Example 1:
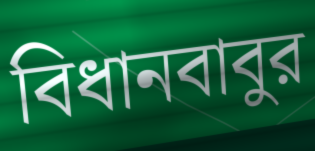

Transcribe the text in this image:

বিধানবাবুর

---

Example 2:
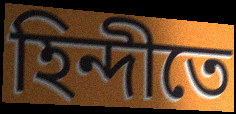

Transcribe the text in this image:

হিন্দীতে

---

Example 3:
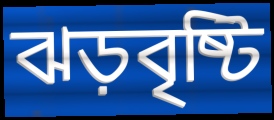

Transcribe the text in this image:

ঝড়বৃষ্টি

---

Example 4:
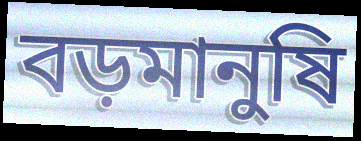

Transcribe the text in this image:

বড়মানুষি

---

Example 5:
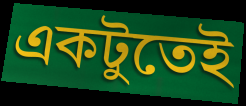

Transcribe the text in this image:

একটুতেই